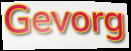
Gevorg